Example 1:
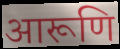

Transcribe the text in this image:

आरूणि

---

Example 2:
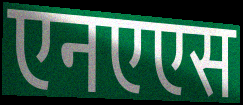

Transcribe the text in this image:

एनएएस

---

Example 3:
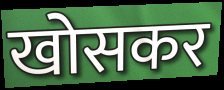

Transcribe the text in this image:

खोसकर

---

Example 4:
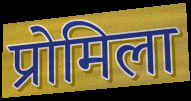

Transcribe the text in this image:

प्रोमिला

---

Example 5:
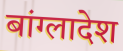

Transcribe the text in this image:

बांग्‍लादेश